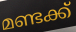
മണ്ടക്ക്